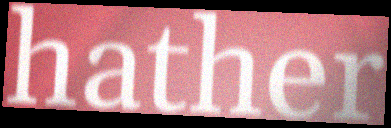
hather